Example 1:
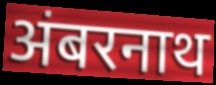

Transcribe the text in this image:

अंबरनाथ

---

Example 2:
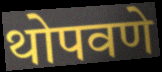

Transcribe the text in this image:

थोपवणे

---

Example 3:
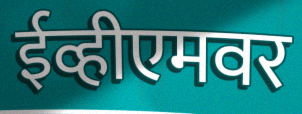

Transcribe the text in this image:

ईव्हीएमवर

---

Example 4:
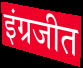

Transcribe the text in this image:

इंग्रजीत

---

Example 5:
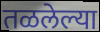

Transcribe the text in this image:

तळलेल्या